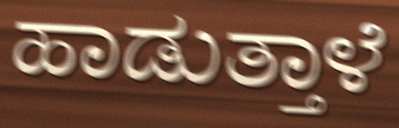
ಹಾಡುತ್ತಾಳೆ